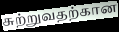
சுற்றுவதற்கான